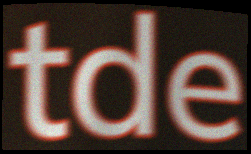
tde